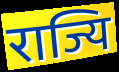
राज्यि